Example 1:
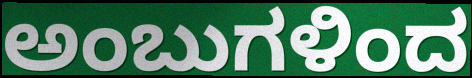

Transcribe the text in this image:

ಅಂಬುಗಳಿಂದ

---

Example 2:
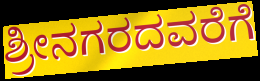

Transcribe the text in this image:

ಶ್ರೀನಗರದವರೆಗೆ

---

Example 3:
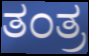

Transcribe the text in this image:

ತಂತ್ರ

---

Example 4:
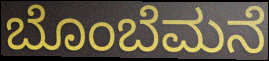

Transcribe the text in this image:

ಬೊಂಬೆಮನೆ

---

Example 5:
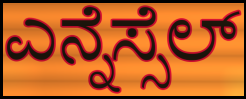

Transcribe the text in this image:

ಎನ್ನೆಸ್ಸೆಲ್